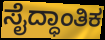
ಸೈದ್ಧಾಂತಿಕ